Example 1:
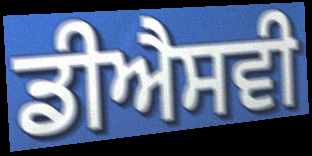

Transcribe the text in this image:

ਡੀਐਸਵੀ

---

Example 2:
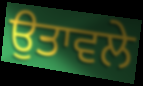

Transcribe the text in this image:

ਉਤਾਵਲੇ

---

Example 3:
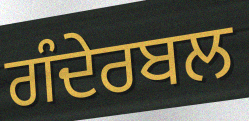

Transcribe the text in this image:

ਗੰਦੇਰਬਲ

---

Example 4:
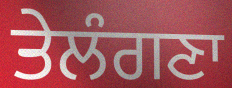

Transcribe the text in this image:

ਤੇਲੰਗਣਾ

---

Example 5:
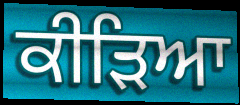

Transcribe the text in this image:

ਕੀੜਿਆ